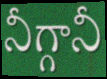
నీగ్గానీ